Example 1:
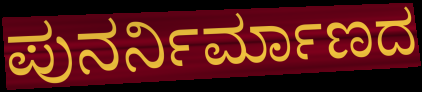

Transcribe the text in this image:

ಪುನರ್ನಿರ್ಮಾಣದ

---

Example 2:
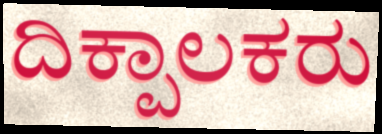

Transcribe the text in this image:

ದಿಕ್ಪಾಲಕರು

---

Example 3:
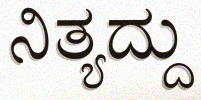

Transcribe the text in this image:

ನಿತ್ಯದ್ದು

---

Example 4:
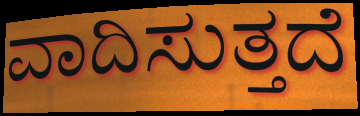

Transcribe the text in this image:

ವಾದಿಸುತ್ತದೆ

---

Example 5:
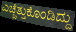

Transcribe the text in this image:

ಎಚ್ಚೆತ್ತುಕೊಂಡಿದ್ದು